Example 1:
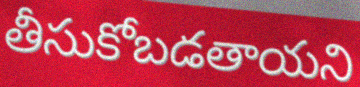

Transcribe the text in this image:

తీసుకోబడతాయని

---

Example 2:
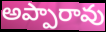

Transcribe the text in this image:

అప్పారావు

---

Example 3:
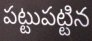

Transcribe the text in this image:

పట్టుపట్టిన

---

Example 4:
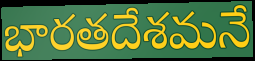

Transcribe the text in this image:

భారతదేశమనే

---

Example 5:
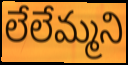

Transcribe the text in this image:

లేలేమ్మని